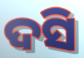
ଦସି